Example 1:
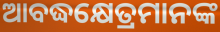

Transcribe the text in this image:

ଆବଦ୍ଧକ୍ଷେତ୍ରମାନଙ୍କ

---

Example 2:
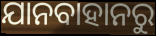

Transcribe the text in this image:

ଯାନବାହାନରୁ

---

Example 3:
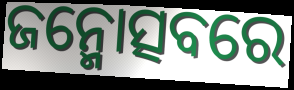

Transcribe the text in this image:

ଜନ୍ମୋତ୍ସବରେ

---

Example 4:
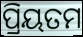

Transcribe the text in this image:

ପ୍ରିୟତମ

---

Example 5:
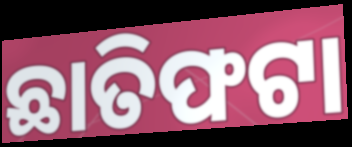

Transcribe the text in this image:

ଛାତିଫଟା